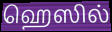
ஹெஸில்